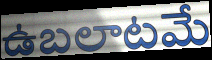
ఉబలాటమే